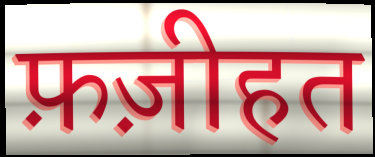
फ़ज़ीहत